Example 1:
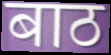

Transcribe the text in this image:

बाठ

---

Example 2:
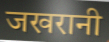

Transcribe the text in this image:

जखरानी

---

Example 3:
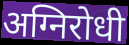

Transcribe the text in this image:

अग्निरोधी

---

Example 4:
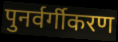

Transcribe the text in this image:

पुनर्वर्गीकरण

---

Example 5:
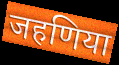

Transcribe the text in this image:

जहणिया